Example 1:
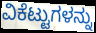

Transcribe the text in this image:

ವಿಕೆಟ್ಟುಗಳನ್ನು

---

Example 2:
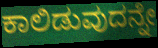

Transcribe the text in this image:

ಕಾಲಿಡುವುದನ್ನೇ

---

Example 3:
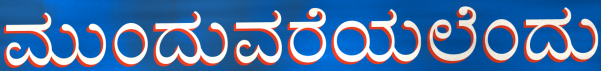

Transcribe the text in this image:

ಮುಂದುವರೆಯಲೆಂದು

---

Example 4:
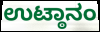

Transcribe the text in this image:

ಉಟ್ಠಾನಂ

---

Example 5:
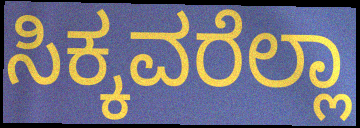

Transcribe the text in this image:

ಸಿಕ್ಕವರೆಲ್ಲಾ